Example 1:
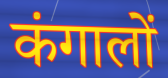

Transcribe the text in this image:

कंगालों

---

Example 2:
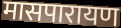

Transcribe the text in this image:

मासपारायण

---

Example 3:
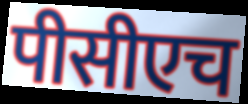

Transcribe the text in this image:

पीसीएच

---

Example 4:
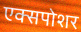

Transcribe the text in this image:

एक्सपोशर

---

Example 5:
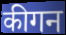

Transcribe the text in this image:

कीगन